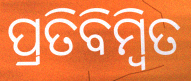
ପ୍ରତିବିମ୍ବିତ